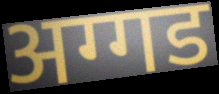
अग्गड